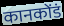
कानकोंडं